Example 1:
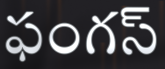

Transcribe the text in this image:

ఫంగస్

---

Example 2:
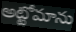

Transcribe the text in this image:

అట్టోమాను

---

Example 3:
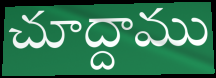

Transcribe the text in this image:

చూద్దాము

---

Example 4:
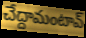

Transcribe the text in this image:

చేద్దామంటావ్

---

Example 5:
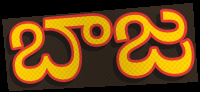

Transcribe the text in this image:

బాజ